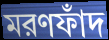
মরণফাঁদ